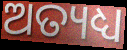
ଅତ୍ୟଧ୍ୟ